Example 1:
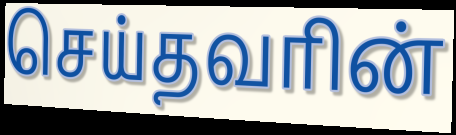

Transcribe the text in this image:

செய்தவரின்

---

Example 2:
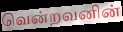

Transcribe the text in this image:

வென்றவனின்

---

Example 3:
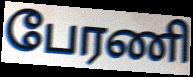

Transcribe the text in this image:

பேரணி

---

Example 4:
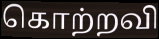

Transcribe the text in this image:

கொற்றவி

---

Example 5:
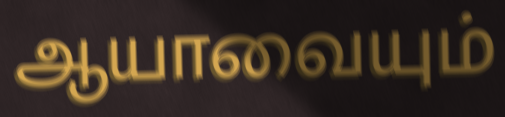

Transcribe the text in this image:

ஆயாவையும்